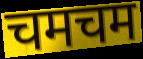
चमचम